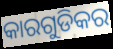
କାରଗୁଡିକର